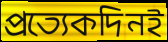
প্রত্যেকদিনই